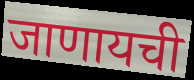
जाणायची